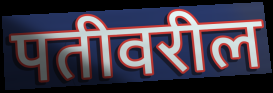
पतीवरील